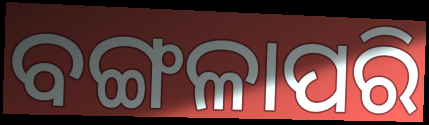
ବଙ୍ଗଳାପରି